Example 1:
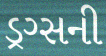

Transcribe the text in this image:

ડ્રગ્સની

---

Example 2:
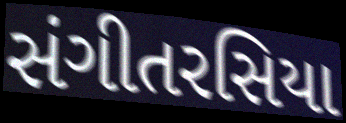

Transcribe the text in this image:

સંગીતરસિયા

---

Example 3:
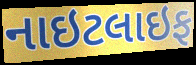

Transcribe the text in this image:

નાઇટલાઇફ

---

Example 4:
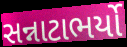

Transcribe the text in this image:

સન્નાટાભર્યો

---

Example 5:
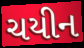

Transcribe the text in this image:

ચયીન